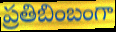
ప్రతిబింబంగా